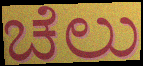
ಚೆಲು